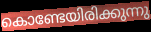
കൊണ്ടേയിരിക്കുന്നു